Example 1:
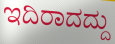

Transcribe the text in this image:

ಇದಿರಾದದ್ದು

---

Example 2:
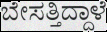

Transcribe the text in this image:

ಬೇಸತ್ತಿದ್ದಾಳೆ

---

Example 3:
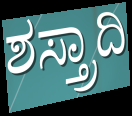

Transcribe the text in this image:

ಶಸ್ತ್ರಾದಿ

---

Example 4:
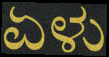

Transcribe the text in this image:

ಏಳು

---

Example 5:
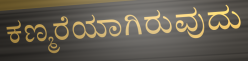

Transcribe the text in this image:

ಕಣ್ಮರೆಯಾಗಿರುವುದು